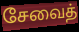
சேவைத்